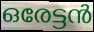
ഒരേട്ടൻ